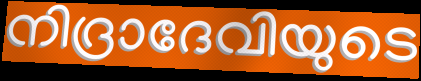
നിദ്രാദേവിയുടെ